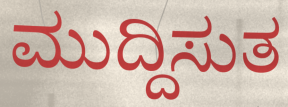
ಮುದ್ದಿಸುತ